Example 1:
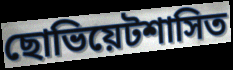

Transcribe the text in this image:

ছোভিয়েটশাসিত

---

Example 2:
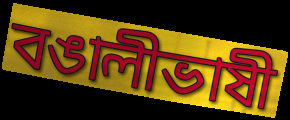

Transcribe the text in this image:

বঙালীভাষী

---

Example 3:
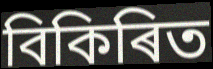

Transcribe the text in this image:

বিকিৰিত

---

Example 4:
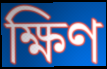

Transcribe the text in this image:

ক্ষিণ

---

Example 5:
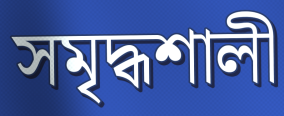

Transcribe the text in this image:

সমৃদ্ধশালী